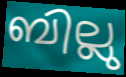
ബില്ലു